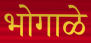
भोगाळे